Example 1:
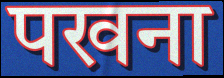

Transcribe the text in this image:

पखना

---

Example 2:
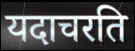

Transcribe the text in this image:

यदाचरति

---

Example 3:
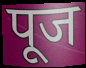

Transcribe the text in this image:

पूज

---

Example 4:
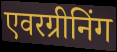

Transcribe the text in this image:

एवरग्रीनिंग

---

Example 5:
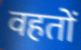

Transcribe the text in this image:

वहतों